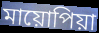
মায়োপিয়া